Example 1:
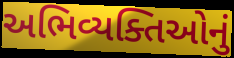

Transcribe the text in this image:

અભિવ્યક્તિઓનું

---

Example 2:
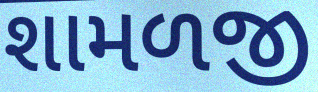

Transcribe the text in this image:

શામળજી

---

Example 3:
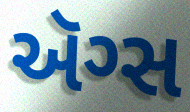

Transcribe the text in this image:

ઍગ્સ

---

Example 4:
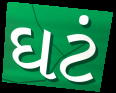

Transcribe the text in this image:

ઘટં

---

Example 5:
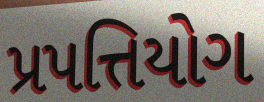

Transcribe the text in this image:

પ્રપત્તિયોગ